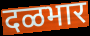
दळभार